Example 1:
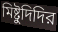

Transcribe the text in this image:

মিষ্টুদিদির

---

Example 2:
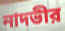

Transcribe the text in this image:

নাদভীর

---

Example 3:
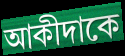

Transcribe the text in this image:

আকীদাকে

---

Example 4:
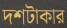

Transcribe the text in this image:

দশটাকার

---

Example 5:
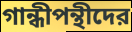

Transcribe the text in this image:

গান্ধীপন্থীদের